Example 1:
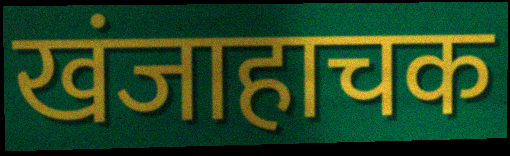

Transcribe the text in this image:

खंजाहाचक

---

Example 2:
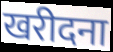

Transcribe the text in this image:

खरीदना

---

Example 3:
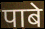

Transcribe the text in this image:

पाबे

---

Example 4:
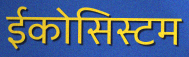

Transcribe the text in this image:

ईकोसिस्‍टम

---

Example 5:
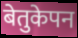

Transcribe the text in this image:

बेतुकेपन